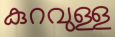
കുറവുള്ള